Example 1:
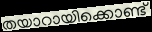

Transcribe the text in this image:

തയാറായിക്കൊണ്ട്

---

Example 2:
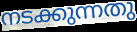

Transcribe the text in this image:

നടക്കുന്നതു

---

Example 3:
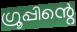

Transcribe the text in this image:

ഗ്രൂപ്പിന്റെ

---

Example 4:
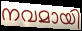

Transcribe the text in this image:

നവമായി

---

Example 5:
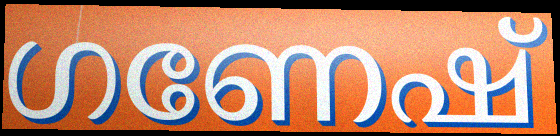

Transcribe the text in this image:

ഗണേഷ്